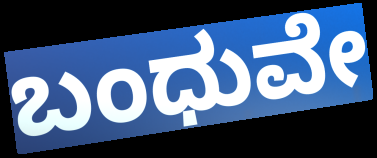
ಬಂಧುವೇ